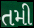
તમી